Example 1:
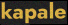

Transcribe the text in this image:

kapale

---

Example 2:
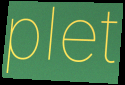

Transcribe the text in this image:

plet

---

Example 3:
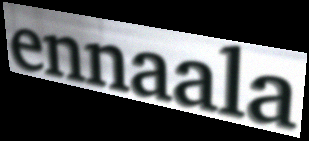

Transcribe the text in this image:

ennaala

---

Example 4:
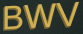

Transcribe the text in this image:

BWV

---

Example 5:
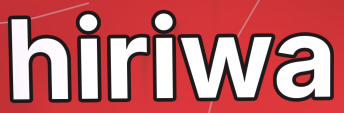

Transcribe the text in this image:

hiriwa